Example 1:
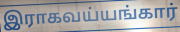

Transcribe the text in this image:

இராகவய்யங்கார்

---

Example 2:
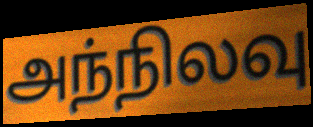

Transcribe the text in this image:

அந்நிலவு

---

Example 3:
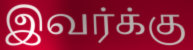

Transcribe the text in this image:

இவர்க்கு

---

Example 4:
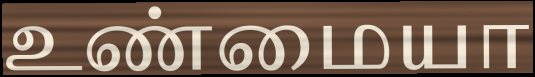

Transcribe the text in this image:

உண்மையா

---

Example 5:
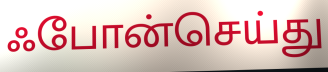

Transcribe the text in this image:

ஃபோன்செய்து